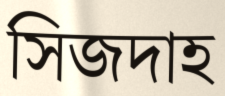
সিজদাহ